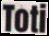
Toti